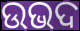
ଉଭଦ